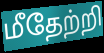
மீதேற்றி